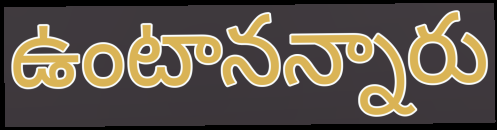
ఉంటానన్నారు